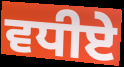
ਵਧੀਏ